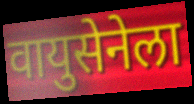
वायुसेनेला